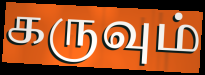
கருவும்